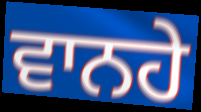
ਵਾਨਹੇ